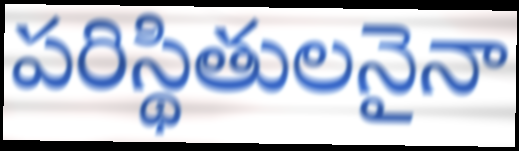
పరిస్థితులనైనా